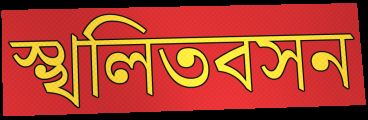
স্খলিতবসন